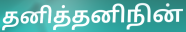
தனித்தனிநின்